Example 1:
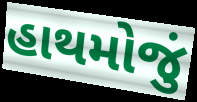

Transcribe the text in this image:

હાથમોજું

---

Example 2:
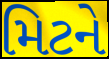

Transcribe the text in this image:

મિટને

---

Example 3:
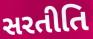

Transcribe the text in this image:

સરતીતિ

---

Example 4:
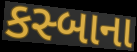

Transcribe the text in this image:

કસ્બાના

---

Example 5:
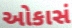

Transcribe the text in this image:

ઓકાસં